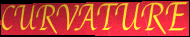
CURVATURE